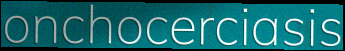
onchocerciasis